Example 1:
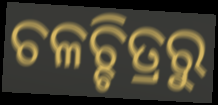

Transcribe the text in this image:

ଚଳଚ୍ଚିତ୍ରରୁ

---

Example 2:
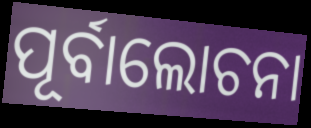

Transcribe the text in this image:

ପୂର୍ବାଲୋଚନା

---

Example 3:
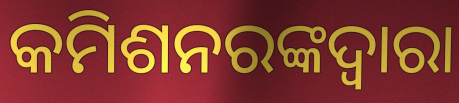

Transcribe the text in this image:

କମିଶନରଙ୍କଦ୍ୱାରା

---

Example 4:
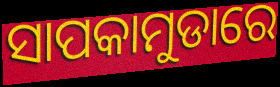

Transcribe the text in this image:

ସାପକାମୁଡାରେ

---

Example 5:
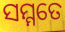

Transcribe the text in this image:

ସମ୍ମତେ